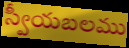
స్వీయబలము